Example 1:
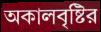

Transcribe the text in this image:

অকালবৃষ্টির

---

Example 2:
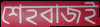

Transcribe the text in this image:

শেহবাজই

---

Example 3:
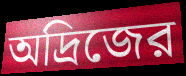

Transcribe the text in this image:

অদ্রিজের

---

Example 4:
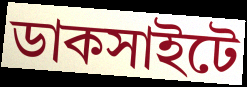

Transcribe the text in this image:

ডাকসাইটে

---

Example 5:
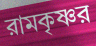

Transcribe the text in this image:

রামকৃষ্ণর